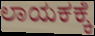
ಲಾಯಕಕ್ಕೆ